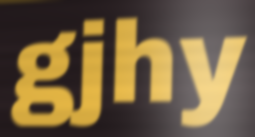
gjhy